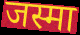
जस्मा